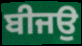
ਬੀਜਉ